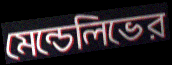
মেন্ডেলিভের